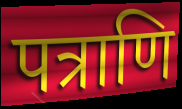
पत्राणि